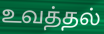
உவத்தல்